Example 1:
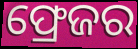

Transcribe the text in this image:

ଫ୍ରେଜର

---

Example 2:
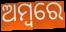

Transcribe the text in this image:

ଅମ୍ବରେ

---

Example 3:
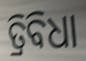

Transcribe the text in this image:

ତ୍ରିବିଧା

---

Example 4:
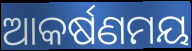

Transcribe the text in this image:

ଆକର୍ଷଣମୟ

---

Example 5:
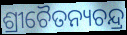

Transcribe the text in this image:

ଶ୍ରୀଚୈତନ୍ୟଚନ୍ଦ୍ର